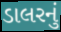
ડાલરનું